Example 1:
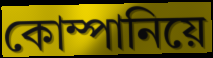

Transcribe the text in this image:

কোম্পানিয়ে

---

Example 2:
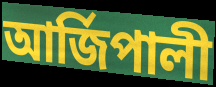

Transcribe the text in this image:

আৰ্জিপালী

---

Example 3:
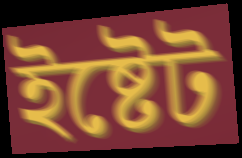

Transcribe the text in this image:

ইষ্টেট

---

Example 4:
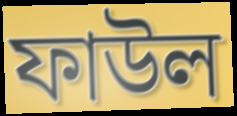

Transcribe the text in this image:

ফাউল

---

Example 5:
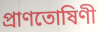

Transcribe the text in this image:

প্ৰাণতোষিণী